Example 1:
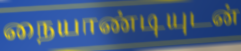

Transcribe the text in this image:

நையாண்டியுடன்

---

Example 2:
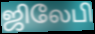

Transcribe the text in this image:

ஜிலேபி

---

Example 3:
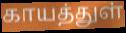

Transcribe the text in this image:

காயத்துள்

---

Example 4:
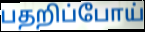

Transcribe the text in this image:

பதறிப்போய்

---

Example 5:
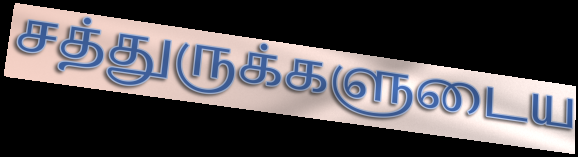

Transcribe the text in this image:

சத்துருக்களுடைய